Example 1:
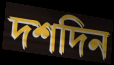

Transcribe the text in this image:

দশদিন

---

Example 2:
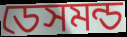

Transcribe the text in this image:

ডেসমন্ড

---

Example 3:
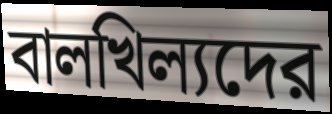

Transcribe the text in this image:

বালখিল্যদের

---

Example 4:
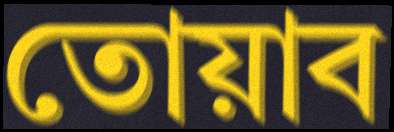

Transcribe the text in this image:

তোয়াব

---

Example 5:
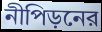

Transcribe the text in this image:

নীপিড়নের